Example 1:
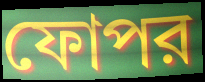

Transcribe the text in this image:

ফোপর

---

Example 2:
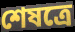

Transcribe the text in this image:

শেষত্রে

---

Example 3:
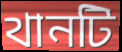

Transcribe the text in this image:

থানটি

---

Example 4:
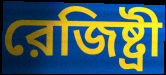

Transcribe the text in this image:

রেজিষ্ট্রী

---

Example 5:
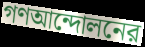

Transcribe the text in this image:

গণআন্দোলনের